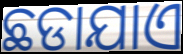
ଛଡାଯାଏ